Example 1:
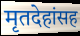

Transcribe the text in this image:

मृतदेहांसह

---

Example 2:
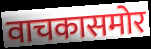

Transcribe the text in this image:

वाचकासमोर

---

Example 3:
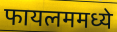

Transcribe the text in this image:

फायलममध्ये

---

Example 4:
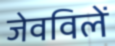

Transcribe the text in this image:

जेवविलें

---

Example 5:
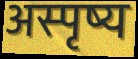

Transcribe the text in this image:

अस्पृष्य